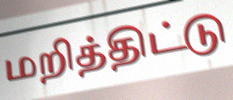
மறித்திட்டு